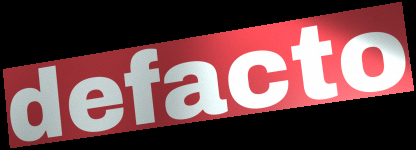
defacto